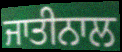
ਜਾਤੀਨਾਲ